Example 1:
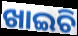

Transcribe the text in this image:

ଖାଇଚି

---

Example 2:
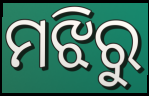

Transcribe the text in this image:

ମଝିରୁ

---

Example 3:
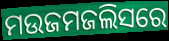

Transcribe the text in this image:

ମଉଜମଜଲିସରେ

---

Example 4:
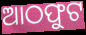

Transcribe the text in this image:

ଆଠଫୁଟ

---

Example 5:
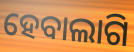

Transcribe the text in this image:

ହେବାଲାଗି